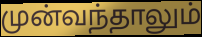
முன்வந்தாலும்